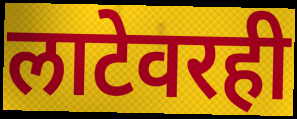
लाटेवरही